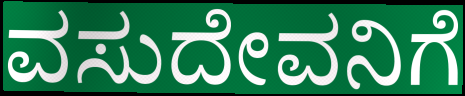
ವಸುದೇವನಿಗೆ